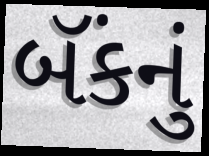
બૅંકનું